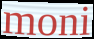
moni